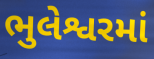
ભુલેશ્વરમાં